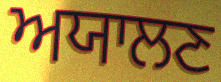
ਅਯਾਲਣ